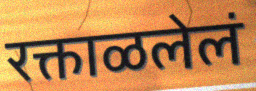
रक्ताळलेलं